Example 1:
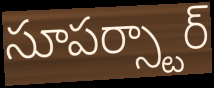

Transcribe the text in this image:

సూపర్స్టార్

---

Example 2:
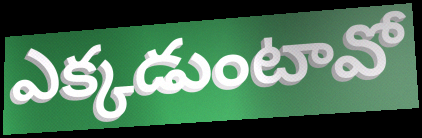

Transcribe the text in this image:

ఎక్కడుంటావో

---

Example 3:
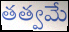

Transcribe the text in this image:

తత్వమే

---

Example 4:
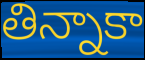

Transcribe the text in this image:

తిన్నాకా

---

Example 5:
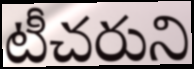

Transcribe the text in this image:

టీచరుని